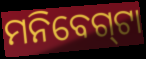
ମନିବେଗ୍‍ଟା